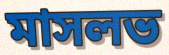
মাসলভ